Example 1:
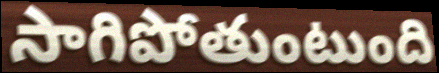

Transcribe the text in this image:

సాగిపోతుంటుంది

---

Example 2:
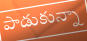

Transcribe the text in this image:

పాడుకున్నా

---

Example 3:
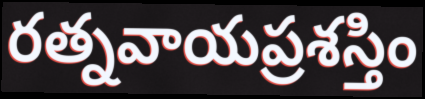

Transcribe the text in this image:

రత్నవాయప్రశస్తిం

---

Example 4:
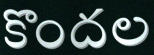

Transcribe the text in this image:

కొందల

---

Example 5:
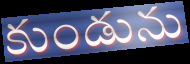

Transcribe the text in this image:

కుండును